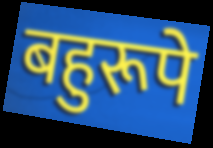
बहुरूपे